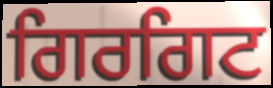
ਗਿਰਗਿਟ